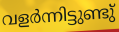
വളർന്നിട്ടുണ്ടു്